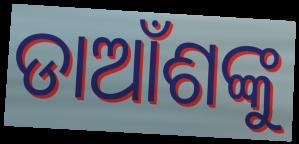
ଡାଆଁଶଙ୍କୁ